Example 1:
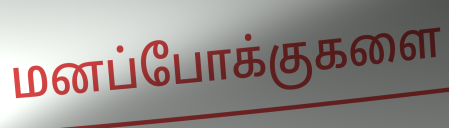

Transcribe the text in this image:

மனப்போக்குகளை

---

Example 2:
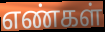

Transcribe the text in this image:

எண்கள்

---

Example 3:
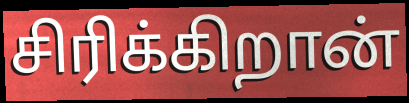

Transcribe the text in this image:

சிரிக்கிறான்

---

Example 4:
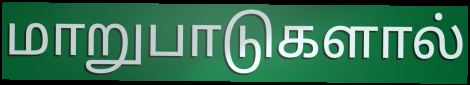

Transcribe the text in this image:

மாறுபாடுகளால்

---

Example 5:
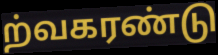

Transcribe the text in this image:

ற்வகரண்டு